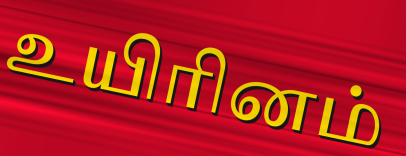
உயிரினம்